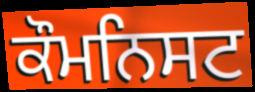
ਕੌਮਨਿਸਟ